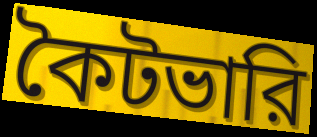
কৈটভারি